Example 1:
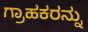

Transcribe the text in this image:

ಗ್ರಾಹಕರನ್ನು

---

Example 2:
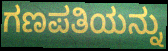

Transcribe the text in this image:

ಗಣಪತಿಯನ್ನು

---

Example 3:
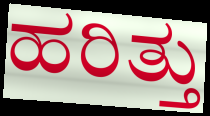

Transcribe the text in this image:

ಹರಿತ್ತು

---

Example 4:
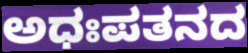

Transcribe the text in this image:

ಅಧಃಪತನದ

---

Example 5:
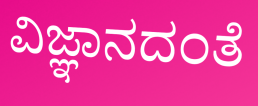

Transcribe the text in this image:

ವಿಜ್ಞಾನದಂತೆ